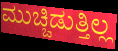
ಮುಚ್ಚಿಡುತ್ತಿಲ್ಲ